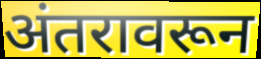
अंतरावरून